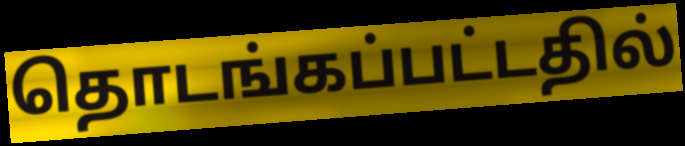
தொடங்கப்பட்டதில்